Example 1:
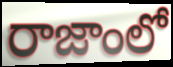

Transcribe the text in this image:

రాజాంలో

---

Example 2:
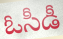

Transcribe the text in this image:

ఓసీడీ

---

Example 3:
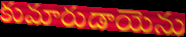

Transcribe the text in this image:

కుమారుడాయెను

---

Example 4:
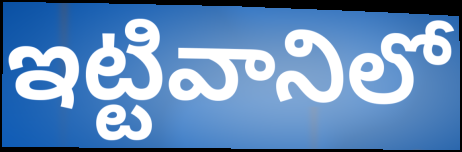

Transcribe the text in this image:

ఇట్టివానిలో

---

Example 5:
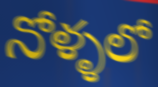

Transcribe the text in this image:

నోళ్ళలో